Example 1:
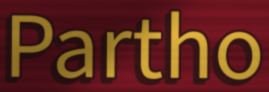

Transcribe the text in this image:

Partho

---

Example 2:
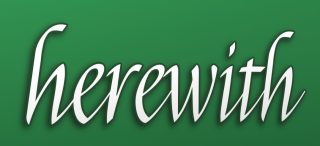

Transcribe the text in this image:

herewith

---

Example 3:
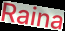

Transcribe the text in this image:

Raina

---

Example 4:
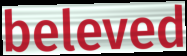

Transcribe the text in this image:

beleved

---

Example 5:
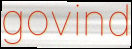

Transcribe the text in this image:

govind